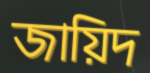
জায়িদ